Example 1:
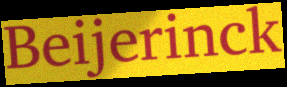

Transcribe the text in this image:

Beijerinck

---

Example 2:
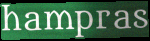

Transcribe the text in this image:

hampras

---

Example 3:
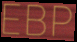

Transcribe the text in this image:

EBP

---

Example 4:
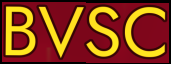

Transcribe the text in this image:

BVSC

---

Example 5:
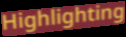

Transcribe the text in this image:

Highlighting